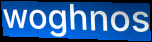
woghnos